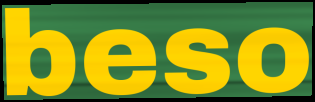
beso